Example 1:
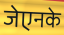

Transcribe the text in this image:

जेएनके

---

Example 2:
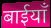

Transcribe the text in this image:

बाईयाँ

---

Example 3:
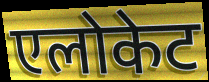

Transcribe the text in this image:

एलोकेट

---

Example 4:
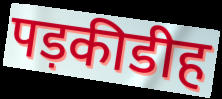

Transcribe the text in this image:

पड़कीडीह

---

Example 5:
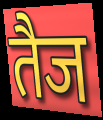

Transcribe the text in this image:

तैज